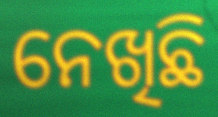
ନେଖିଛି